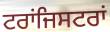
ਟਰਾਂਜਿਸਟਰਾਂ